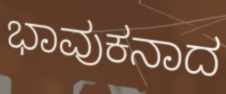
ಭಾವುಕನಾದ